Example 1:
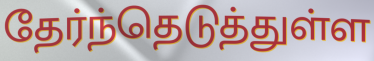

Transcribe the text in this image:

தேர்ந்தெடுத்துள்ள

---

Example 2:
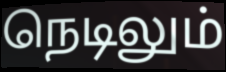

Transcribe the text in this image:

நெடிலும்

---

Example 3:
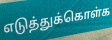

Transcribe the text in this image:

எடுத்துக்கொள்க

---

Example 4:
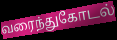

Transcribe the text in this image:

வரைந்துகோடல்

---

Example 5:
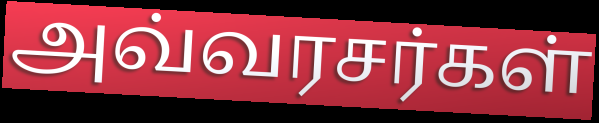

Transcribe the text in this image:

அவ்வரசர்கள்